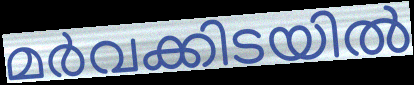
മർവക്കിടയിൽ